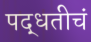
पद्धतीचं